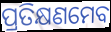
ପ୍ରତିକ୍ଷଣମେବ